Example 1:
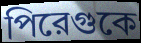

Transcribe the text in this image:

পিরেগুকে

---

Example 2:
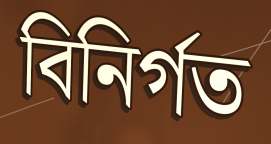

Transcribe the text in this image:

বিনির্গত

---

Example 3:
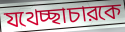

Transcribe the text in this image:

যথেচ্ছাচারকে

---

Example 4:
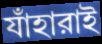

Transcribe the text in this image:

যাঁহারাই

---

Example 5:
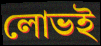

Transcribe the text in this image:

লোভই